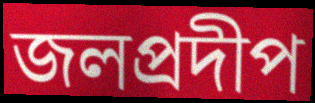
জলপ্রদীপ